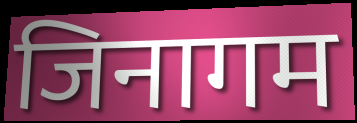
जिनागम